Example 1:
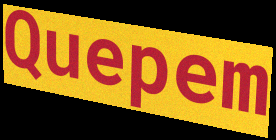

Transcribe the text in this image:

Quepem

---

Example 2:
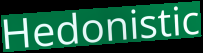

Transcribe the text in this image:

Hedonistic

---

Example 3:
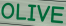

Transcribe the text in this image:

OLIVE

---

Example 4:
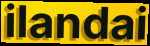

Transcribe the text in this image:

ilandai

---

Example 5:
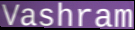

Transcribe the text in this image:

Vashram